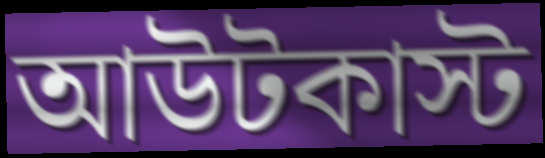
আউটকাস্ট